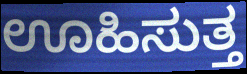
ಊಹಿಸುತ್ತ